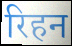
रिहन